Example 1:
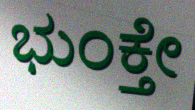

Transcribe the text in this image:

ಭುಂಕ್ತೇ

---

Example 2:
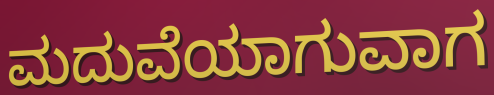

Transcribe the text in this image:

ಮದುವೆಯಾಗುವಾಗ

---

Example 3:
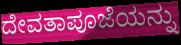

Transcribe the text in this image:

ದೇವತಾಪೂಜೆಯನ್ನು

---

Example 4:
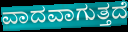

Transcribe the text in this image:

ವಾದವಾಗುತ್ತದೆ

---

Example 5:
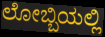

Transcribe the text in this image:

ಲೋಬ್ಬಿಯಲ್ಲಿ